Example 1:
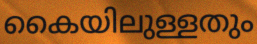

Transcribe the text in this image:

കൈയിലുള്ളതും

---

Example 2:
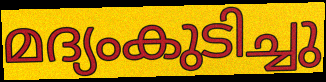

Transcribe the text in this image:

മദ്യംകുടിച്ചു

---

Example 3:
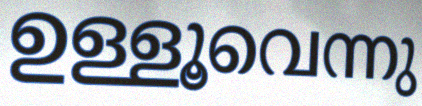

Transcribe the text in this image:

ഉള്ളൂവെന്നു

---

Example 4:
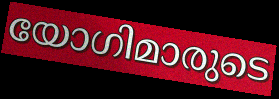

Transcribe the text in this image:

യോഗിമാരുടെ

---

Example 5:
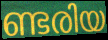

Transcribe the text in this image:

ണ്ടരിയ